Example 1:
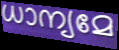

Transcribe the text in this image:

ധാന്യമേ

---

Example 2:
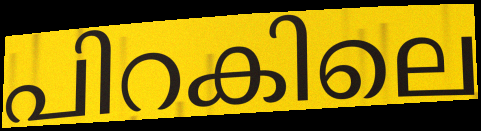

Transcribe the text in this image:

പിറകിലെ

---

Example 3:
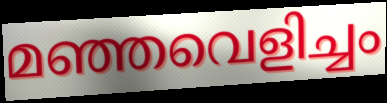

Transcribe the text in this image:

മഞ്ഞവെളിച്ചം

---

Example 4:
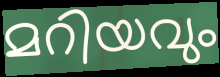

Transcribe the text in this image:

മറിയവും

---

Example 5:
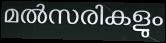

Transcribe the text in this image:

മൽസരികളും